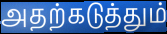
அதற்கடுத்தும்